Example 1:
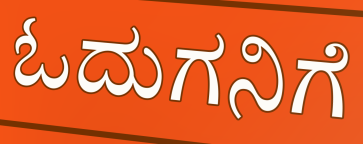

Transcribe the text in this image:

ಓದುಗನಿಗೆ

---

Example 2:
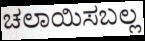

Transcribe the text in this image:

ಚಲಾಯಿಸಬಲ್ಲ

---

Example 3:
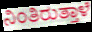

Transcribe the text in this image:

ನಿಂತಿರುತ್ತಾಳೆ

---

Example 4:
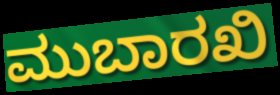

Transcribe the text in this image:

ಮುಬಾರಖಿ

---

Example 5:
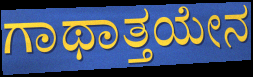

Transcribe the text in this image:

ಗಾಥಾತ್ತಯೇನ